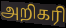
அறிகரி